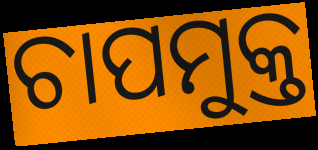
ଚାପମୁକ୍ତ